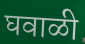
घवाळी